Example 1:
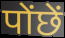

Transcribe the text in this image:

पोंछें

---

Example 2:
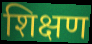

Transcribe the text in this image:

शिक्षण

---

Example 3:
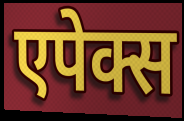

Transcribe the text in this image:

एपेक्स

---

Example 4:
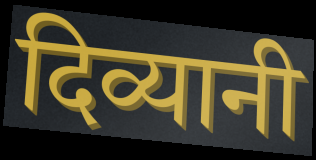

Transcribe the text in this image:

दिव्यानी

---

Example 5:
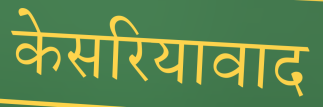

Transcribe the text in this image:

केसरियावाद